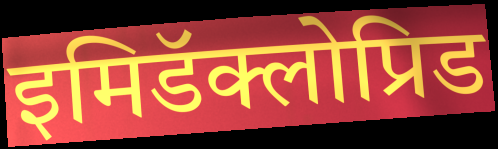
इमिडॅक्लोप्रिड